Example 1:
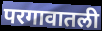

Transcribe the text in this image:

परगावातली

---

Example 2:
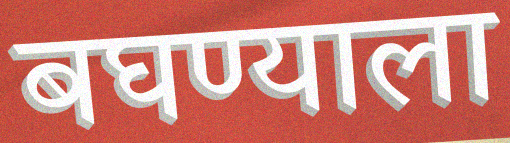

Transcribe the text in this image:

बघण्याला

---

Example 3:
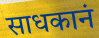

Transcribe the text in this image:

साधकानं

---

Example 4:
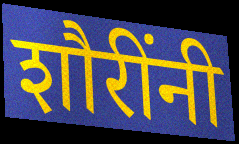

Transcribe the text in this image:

शौरींनी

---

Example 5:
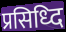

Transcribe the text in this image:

प्रसिध्दि